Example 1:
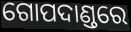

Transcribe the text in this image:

ଗୋପଦାଣ୍ଡରେ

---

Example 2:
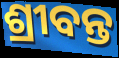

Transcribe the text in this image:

ଶ୍ରୀବନ୍ତ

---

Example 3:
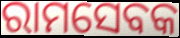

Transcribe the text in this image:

ରାମସେବକ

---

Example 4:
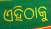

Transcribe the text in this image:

ଏହିଠାକୁ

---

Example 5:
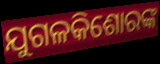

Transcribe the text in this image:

ଯୁଗଳକିଶୋରଙ୍କ